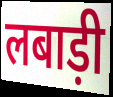
लबाड़ी